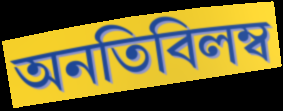
অনতিবিলম্ব